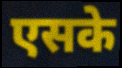
एसके